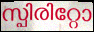
സ്പിരിറ്റോ